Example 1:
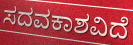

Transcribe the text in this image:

ಸದವಕಾಶವಿದೆ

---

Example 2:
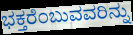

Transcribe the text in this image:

ಭಕ್ತರೆಂಬುವವರಿನ್ನು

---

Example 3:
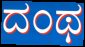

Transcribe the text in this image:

ದಂಥ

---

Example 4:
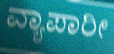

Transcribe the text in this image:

ವ್ಯಾಪಾರೀ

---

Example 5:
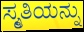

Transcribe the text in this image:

ಸ್ಮೃತಿಯನ್ನು